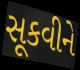
સૂકવીને